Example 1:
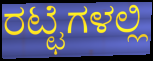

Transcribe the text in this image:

ರಟ್ಟೆಗಳಲ್ಲಿ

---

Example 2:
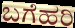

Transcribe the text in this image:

ಬಗೆಹರಿ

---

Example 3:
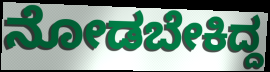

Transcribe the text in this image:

ನೋಡಬೇಕಿದ್ದ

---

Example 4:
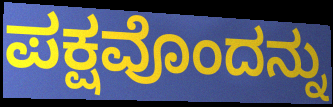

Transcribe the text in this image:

ಪಕ್ಷವೊಂದನ್ನು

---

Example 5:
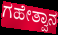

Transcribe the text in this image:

ಗಹೇತ್ವಾನ